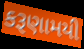
કરૂણામયી